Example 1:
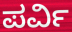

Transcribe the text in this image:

ಪರ್ವಿ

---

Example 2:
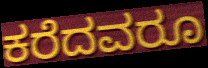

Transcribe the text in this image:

ಕರೆದವರೂ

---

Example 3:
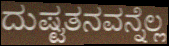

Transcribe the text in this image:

ದುಷ್ಟತನವನ್ನೆಲ್ಲ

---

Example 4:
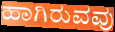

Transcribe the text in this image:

ಹಾಗಿರುವವು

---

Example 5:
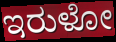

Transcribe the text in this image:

ಇರುಳೋ